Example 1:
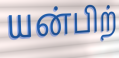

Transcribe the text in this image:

யன்பிற்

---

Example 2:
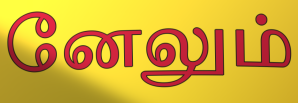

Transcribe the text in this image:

னேலும்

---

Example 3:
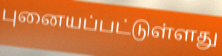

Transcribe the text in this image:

புனையப்பட்டுள்ளது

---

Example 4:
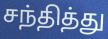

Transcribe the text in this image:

சந்தித்து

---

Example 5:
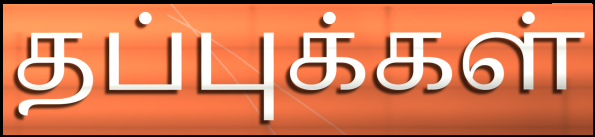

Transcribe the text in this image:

தப்புக்கள்